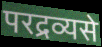
परद्रव्यसे